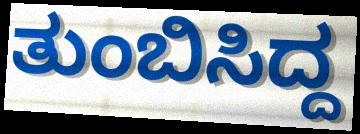
ತುಂಬಿಸಿದ್ದ